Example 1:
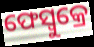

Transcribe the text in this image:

ଫେସ୍ବୁକ୍ରେ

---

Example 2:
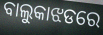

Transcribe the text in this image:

ବାଲୁକାଝଡରେ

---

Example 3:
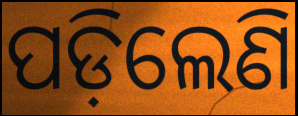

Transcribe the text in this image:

ପଡ଼ିଲେଣି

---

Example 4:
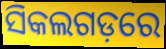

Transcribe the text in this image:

ସିକଲଗଡ଼ରେ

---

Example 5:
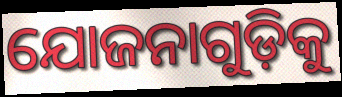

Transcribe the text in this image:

ଯୋଜନାଗୁଡ଼ିକୁ